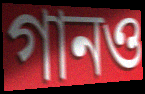
গানও